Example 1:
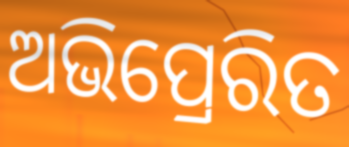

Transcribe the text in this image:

ଅଭିପ୍ରେରିତ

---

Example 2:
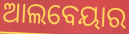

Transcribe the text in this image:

ଆଲବେୟାର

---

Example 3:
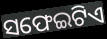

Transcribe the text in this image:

ସଫେଇଟିଏ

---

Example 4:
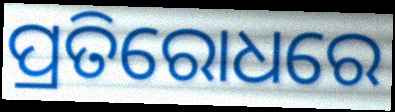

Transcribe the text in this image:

ପ୍ରତିରୋଧରେ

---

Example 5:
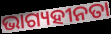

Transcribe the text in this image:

ଭାଗ୍ୟହୀନତା